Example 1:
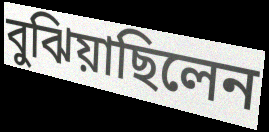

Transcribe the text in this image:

বুঝিয়াছিলেন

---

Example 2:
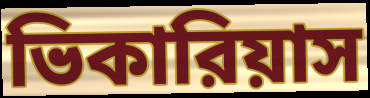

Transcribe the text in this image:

ভিকারিয়াস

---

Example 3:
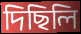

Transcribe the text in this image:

দিছিলি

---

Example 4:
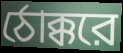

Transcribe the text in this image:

ঠোক্করে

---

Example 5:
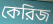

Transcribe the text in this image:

কেরিজ